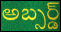
అబ్సర్డ్